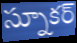
స్నూకర్